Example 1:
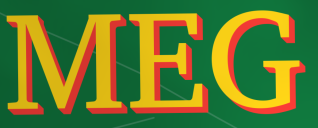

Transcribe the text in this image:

MEG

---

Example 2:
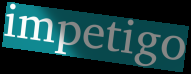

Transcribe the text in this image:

impetigo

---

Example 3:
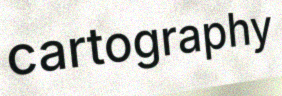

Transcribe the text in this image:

cartography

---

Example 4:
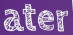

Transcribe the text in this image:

ater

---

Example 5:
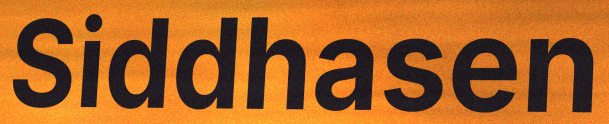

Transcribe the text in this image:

Siddhasen